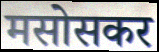
मसोसकर